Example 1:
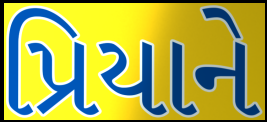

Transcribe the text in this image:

પ્રિયાને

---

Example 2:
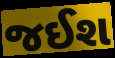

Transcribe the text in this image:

જઈશ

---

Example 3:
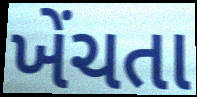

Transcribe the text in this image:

ખેંચતા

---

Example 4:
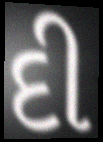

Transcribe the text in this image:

દી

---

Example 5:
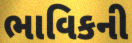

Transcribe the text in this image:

ભાવિકની